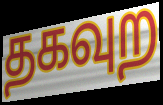
தகவுற